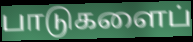
பாடுகளைப்